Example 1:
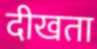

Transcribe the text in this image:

दीखता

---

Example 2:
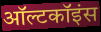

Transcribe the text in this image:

ऑल्टकॉइंस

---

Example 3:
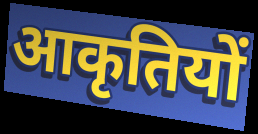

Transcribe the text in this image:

आकृतियों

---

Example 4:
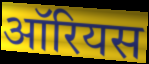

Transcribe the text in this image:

ऑरियस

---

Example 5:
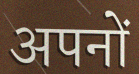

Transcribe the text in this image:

अपनों